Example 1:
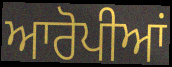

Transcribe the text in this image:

ਆਰੋਪੀਆਂ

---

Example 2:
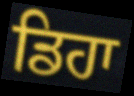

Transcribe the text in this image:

ਡਿਹਾ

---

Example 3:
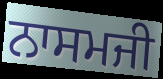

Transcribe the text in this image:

ਨਾਸਮਜੀ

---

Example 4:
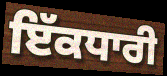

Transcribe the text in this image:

ਇੱਕਧਾਰੀ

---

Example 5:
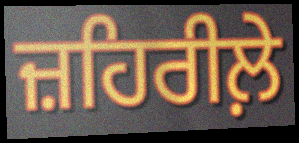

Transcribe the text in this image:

ਜ਼ਹਿਰੀਲ਼ੇ